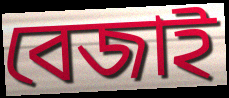
বেজাই